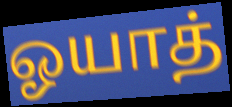
ஓயாத்